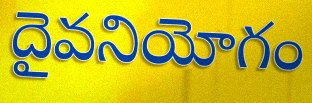
దైవనియోగం